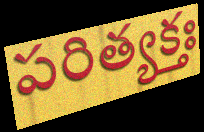
పరిత్యక్తః